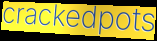
crackedpots